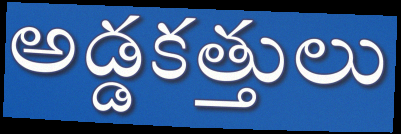
అడ్డకత్తులు